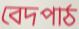
বেদপাঠ